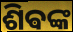
ଶିଵଙ୍କ